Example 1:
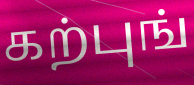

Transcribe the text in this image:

கற்புங்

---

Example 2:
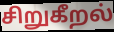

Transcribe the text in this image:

சிறுகீறல்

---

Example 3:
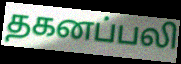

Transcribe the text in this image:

தகனப்பலி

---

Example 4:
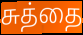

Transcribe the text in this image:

சுத்தை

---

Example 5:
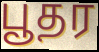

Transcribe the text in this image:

பூதர